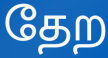
தேற